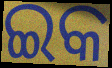
ଇକ